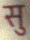
सु